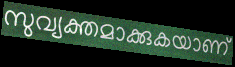
സുവ്യക്തമാക്കുകയാണ്